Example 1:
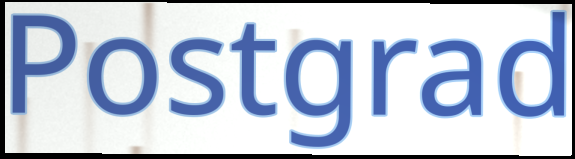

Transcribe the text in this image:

Postgrad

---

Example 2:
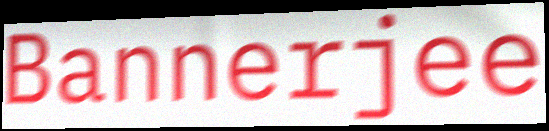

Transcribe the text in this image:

Bannerjee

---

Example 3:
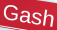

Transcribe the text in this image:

Gash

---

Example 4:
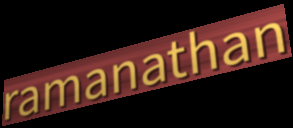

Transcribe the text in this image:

ramanathan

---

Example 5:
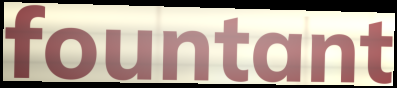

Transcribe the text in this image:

fountant